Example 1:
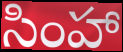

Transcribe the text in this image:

సింహా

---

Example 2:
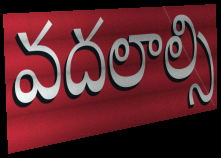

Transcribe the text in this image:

వదలాల్సి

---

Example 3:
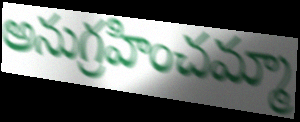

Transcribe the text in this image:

అనుగ్రహించమ్మా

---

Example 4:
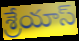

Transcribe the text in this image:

శ్రేయాస్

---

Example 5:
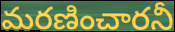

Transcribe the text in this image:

మరణించారనీ